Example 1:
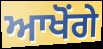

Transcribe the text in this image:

ਆਖੋਂਗੇ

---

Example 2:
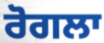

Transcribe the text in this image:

ਰੋਗਲਾ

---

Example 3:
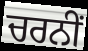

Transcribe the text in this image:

ਚਰਨੀਂ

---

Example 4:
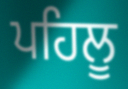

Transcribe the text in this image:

ਪਹਿਲੂ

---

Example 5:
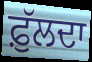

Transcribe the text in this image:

ਫ਼ੁੱਲਦਾ